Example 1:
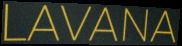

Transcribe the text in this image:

LAVANA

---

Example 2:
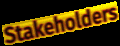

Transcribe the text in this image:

Stakeholders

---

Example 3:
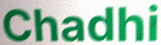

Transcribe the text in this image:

Chadhi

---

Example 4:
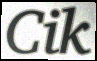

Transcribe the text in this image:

Cik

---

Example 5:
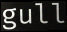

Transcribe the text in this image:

gull